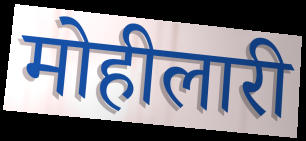
मोहीलारी